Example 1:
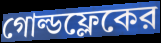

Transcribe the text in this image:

গোল্ডফ্লেকের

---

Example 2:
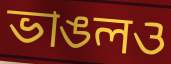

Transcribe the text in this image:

ভাঙলও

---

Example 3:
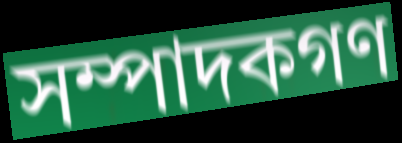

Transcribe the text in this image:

সম্পাদকগণ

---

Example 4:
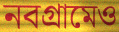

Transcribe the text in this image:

নবগ্রামেও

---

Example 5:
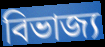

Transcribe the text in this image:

বিভাজ্য